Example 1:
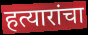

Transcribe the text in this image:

हत्यारांचा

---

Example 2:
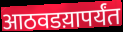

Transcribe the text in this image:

आठवडय़ापर्यंत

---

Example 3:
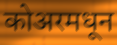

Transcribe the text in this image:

कोअरमधून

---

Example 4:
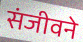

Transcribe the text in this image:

संजीवने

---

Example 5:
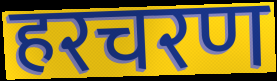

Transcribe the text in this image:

हरचरण